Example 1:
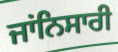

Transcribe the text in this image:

ਜਾਂਨਿਸਾਰੀ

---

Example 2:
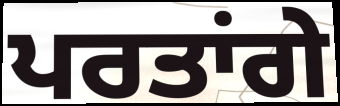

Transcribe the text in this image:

ਪਰਤਾਂਗੇ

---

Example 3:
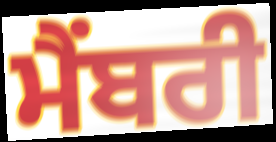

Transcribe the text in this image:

ਮੈਂਬਰੀ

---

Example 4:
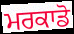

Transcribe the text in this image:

ਮਰਕਾਡੋ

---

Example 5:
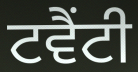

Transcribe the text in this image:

ਟਵੈਂਟੀ